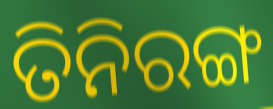
ତିନିରଙ୍ଗ